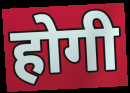
होगी